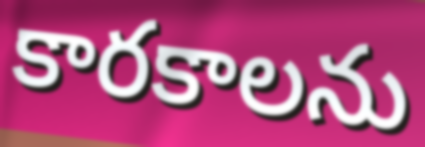
కారకాలను